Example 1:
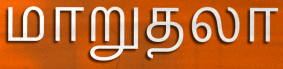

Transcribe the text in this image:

மாறுதலா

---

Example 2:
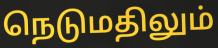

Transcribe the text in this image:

நெடுமதிலும்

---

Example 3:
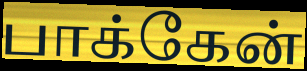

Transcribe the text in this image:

பாக்கேன்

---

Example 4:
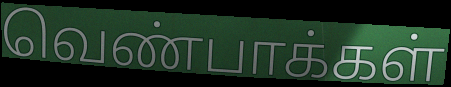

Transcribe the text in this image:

வெண்பாக்கள்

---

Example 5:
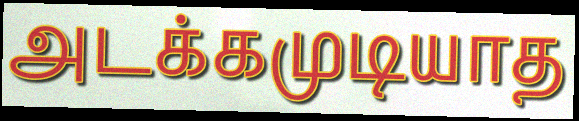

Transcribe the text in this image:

அடக்கமுடியாத